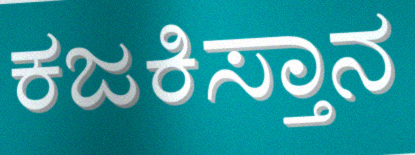
ಕಜಕಿಸ್ತಾನ